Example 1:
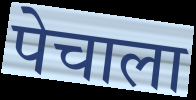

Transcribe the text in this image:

पेचाला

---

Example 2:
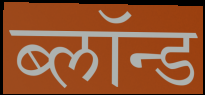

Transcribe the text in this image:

ब्लॉन्ड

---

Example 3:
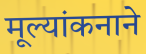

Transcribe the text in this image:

मूल्यांकनाने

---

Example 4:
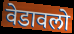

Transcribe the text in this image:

वेडावलो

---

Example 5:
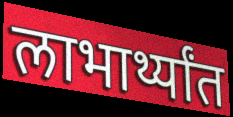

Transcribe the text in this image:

लाभार्थ्यांत